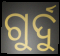
ଗୁର୍ଦୁ